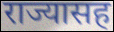
राज्यासह